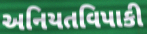
અનિયતવિપાકી